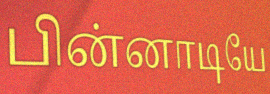
பின்னாடியே